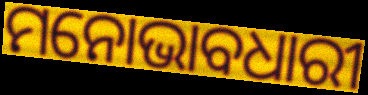
ମନୋଭାବଧାରୀ